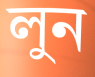
লুন